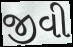
જીવી